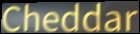
Cheddar